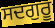
ਸਦਗੁਰੂ